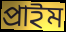
প্রাইম